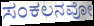
ಸಂಕಲನವೋ